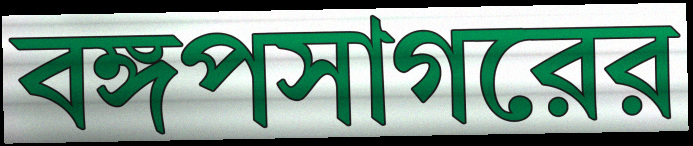
বঙ্গপসাগরের